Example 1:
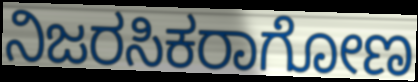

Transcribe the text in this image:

ನಿಜರಸಿಕರಾಗೋಣ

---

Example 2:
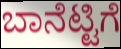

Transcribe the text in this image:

ಬಾನೆಟ್ಟಿಗೆ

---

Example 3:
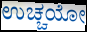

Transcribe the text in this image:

ಉಚ್ಚಯೋ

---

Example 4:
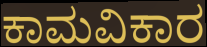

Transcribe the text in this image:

ಕಾಮವಿಕಾರ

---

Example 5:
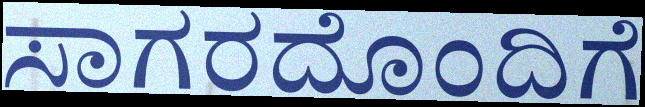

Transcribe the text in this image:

ಸಾಗರದೊಂದಿಗೆ